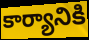
కార్యానికి